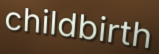
childbirth